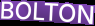
BOLTON